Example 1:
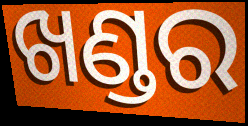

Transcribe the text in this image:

ଖଣ୍ଡର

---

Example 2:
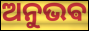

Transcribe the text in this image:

ଅନୁଭଵ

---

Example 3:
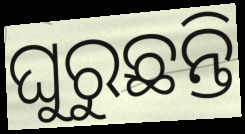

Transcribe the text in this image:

ଘୁରୁଛନ୍ତି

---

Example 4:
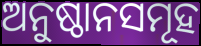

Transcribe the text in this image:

ଅନୁଷ୍ଠାନସମୂହ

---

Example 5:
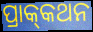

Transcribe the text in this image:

ପ୍ରାକ୍‍କଥନ